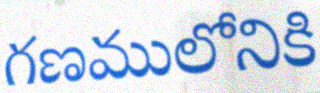
గణములోనికి